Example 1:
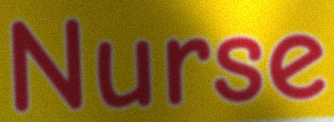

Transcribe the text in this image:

Nurse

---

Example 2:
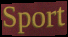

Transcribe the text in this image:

Sport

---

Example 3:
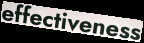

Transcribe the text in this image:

effectiveness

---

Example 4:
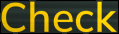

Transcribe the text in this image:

Check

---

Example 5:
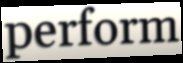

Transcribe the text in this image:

perform